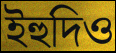
ইহুদিও